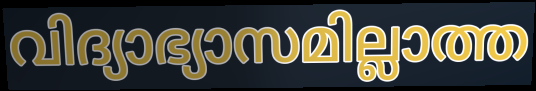
വിദ്യാഭ്യാസമില്ലാത്ത